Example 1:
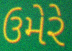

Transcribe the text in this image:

ઉમેરે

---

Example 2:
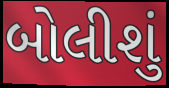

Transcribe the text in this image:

બોલીશું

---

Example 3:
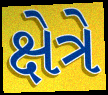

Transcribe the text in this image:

ક્ષેત્રે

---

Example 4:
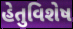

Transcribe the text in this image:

હેતુવિશેષ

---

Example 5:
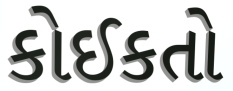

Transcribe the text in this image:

કોઈકતો